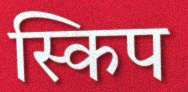
स्किप